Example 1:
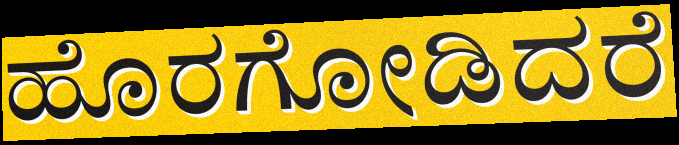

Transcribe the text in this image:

ಹೊರಗೋಡಿದರೆ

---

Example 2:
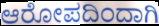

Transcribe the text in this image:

ಆರೋಪದಿಂದಾಗಿ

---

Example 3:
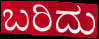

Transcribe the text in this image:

ಬರಿದು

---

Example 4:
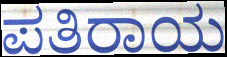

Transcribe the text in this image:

ಪತಿರಾಯ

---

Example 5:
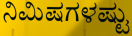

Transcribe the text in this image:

ನಿಮಿಷಗಳಷ್ಟು